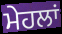
ਮੇਹਲਾਂ